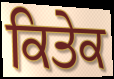
ਕਿਤੇਕ